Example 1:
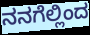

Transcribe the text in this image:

ನನಗೆಲ್ಲಿಂದ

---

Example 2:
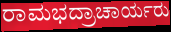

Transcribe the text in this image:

ರಾಮಭದ್ರಾಚಾರ್ಯರು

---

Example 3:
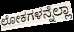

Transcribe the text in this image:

ಲೋಕಗಳನ್ನೆಲ್ಲಾ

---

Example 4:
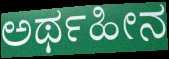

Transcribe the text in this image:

ಅರ್ಥಹೀನ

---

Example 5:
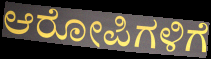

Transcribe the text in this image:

ಆರೋಪಿಗಳಿಗೆ